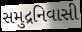
સમુદ્રનિવાસી